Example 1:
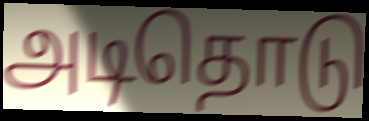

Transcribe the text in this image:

அடிதொடு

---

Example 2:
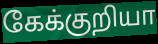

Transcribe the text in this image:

கேக்குறியா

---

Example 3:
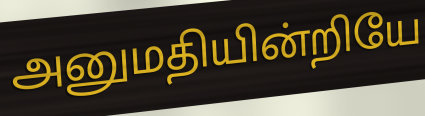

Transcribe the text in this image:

அனுமதியின்றியே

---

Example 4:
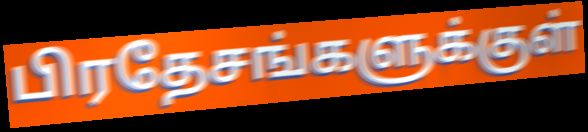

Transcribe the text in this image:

பிரதேசங்களுக்குள்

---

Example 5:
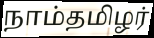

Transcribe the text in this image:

நாம்தமிழர்